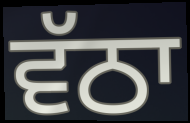
ਵੱਠਾ